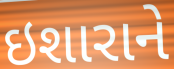
ઇશારાને